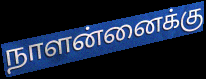
நாளன்னைக்கு